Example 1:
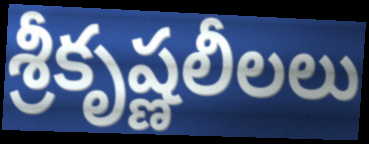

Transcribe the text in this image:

శ్రీకృష్ణలీలలు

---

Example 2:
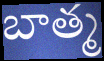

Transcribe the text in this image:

బాత్మ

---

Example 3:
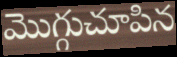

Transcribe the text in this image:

మొగ్గుచూపిన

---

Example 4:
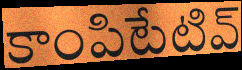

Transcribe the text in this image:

కాంపిటేటివ్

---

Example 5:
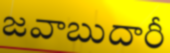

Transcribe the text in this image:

జవాబుదారీ